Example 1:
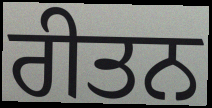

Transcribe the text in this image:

ਰੀਤਨ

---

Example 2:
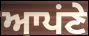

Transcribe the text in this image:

ਆਪਂਣੇ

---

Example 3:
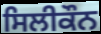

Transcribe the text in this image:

ਸਿਲੀਕੌਨ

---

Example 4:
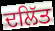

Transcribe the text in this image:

ਦਲਿੱਤ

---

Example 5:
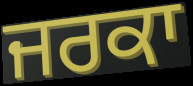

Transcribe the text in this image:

ਜਰਕਾ